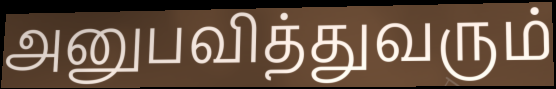
அனுபவித்துவரும்